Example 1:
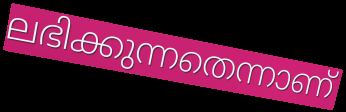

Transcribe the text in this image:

ലഭിക്കുന്നതെന്നാണ്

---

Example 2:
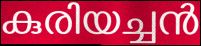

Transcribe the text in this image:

കുരിയച്ചൻ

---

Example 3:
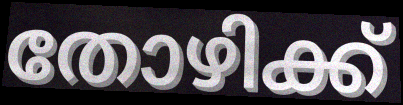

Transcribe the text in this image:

തോഴിക്ക്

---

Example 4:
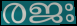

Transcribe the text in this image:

രജഃ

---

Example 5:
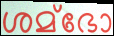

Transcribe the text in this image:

ശമ്ഭോ